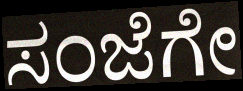
ಸಂಜೆಗೇ